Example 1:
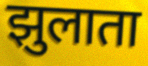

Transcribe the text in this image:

झुलाता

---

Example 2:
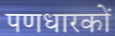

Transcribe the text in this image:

पणधारकों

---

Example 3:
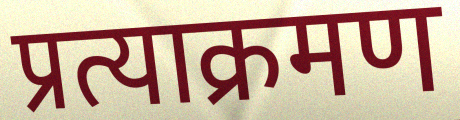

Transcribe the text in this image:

प्रत्याक्रमण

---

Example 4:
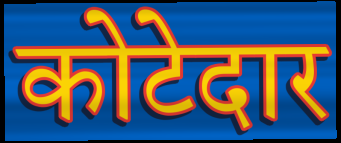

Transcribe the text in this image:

कोटेदार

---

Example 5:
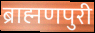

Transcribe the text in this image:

ब्राह्मणपुरी